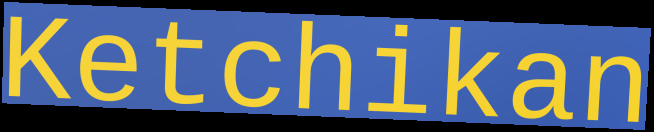
Ketchikan